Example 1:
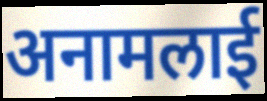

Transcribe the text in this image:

अनामलाई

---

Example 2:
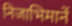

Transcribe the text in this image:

निजाभिमानें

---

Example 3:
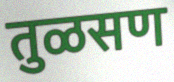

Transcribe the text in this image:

तुळसण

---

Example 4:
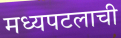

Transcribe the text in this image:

मध्यपटलाची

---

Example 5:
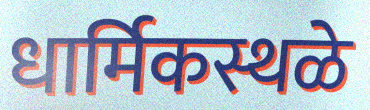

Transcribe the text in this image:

धार्मिकस्थळे